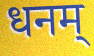
धनम्